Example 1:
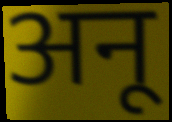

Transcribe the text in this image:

अनू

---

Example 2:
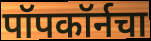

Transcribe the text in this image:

पॉपकॉर्नचा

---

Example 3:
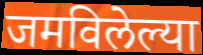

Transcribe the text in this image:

जमविलेल्या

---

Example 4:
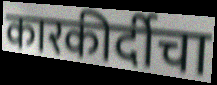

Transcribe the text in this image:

कारकीर्दीचा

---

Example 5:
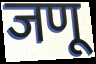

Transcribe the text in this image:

जणू